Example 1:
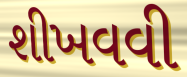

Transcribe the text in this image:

શીખવવી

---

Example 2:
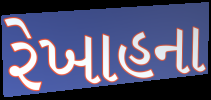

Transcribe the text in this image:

રેખાહના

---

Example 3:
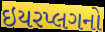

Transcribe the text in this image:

ઇયરપ્લગનો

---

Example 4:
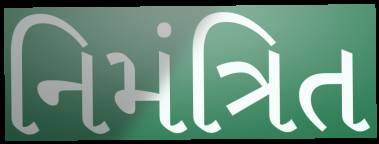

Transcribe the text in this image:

નિમંત્રિત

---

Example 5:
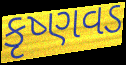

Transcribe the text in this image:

કૃષ્ણવડ